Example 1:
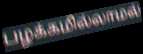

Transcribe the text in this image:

பழக்கமில்லாமல்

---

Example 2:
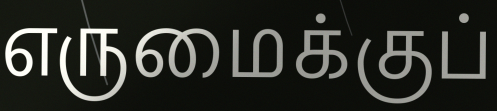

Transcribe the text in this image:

எருமைக்குப்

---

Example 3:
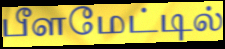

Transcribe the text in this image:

பீளமேட்டில்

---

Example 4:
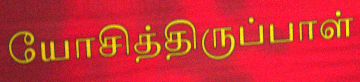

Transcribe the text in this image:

யோசித்திருப்பாள்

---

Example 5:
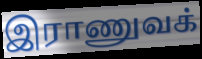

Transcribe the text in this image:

இராணுவக்